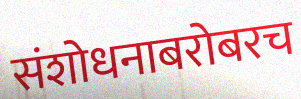
संशोधनाबरोबरच